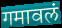
गमावलं